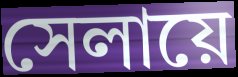
সেলায়ে